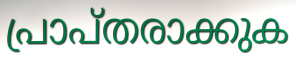
പ്രാപ്തരാക്കുക